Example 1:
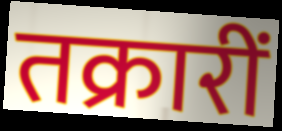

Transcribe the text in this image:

तक्रारीं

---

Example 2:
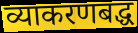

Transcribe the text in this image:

व्याकरणबद्ध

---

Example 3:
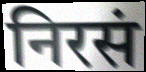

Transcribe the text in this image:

निरसं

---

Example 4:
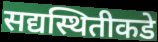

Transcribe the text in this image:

सद्यस्थितीकडे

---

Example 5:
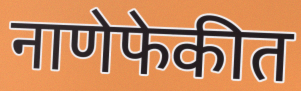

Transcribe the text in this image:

नाणेफेकीत